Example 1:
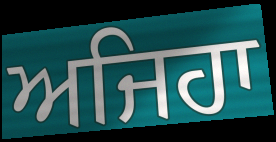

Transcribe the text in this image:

ਅਜਿਹਾ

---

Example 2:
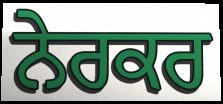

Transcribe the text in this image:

ਨੇਰਕਰ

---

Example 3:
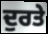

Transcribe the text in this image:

ਦੁਰਤੇ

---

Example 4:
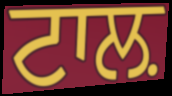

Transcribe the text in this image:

ਟਾਲ਼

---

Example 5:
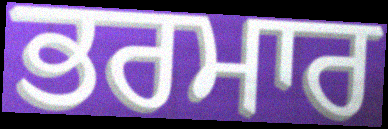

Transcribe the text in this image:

ਭਰਮਾਰ